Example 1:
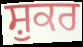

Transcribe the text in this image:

ਸ਼ੁਕਰ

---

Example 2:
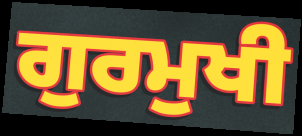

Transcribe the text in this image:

ਗੁਰਮੁਖੀ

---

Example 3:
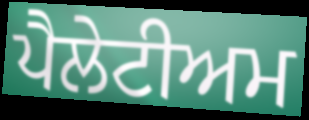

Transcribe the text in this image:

ਪੈਲੇਟੀਅਮ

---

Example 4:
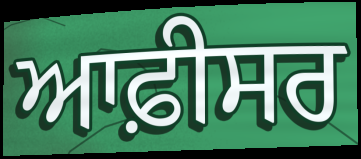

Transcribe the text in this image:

ਆਫ਼ੀਸਰ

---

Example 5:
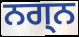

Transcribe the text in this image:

ਨਗ੍ਨ